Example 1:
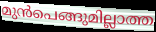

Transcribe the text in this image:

മുൻപെങ്ങുമില്ലാത്ത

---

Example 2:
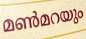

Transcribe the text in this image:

മൺമറയും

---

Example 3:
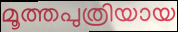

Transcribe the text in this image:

മൂത്തപുത്രിയായ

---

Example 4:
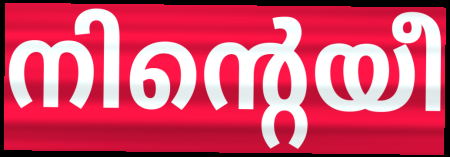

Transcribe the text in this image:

നിന്റെയീ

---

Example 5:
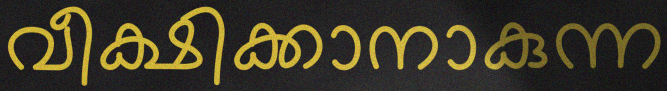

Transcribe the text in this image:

വീക്ഷിക്കാനാകുന്ന